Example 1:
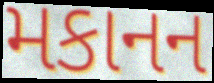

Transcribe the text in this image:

મકાનન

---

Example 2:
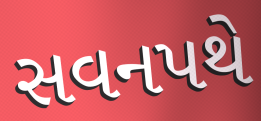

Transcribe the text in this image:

સવનપથે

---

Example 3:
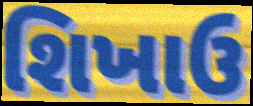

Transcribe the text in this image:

શિખાઉ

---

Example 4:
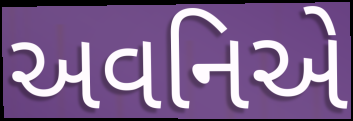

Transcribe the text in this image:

અવનિએ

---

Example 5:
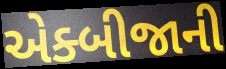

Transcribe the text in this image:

એક્બીજાની